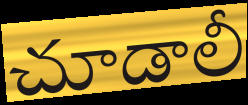
చూడాలీ